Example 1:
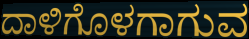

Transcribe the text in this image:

ದಾಳಿಗೊಳಗಾಗುವ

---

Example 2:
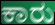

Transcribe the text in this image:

ಕಾರು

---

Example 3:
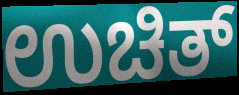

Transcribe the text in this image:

ಉಚಿತ್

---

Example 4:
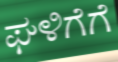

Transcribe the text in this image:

ಘಳಿಗೆಗೆ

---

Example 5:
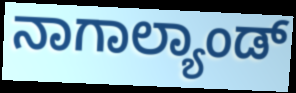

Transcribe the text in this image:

ನಾಗಾಲ್ಯಾಂಡ್